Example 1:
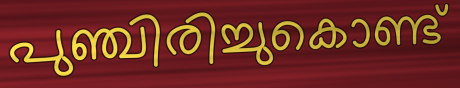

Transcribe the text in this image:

പുഞ്ചിരിച്ചുകൊണ്ട്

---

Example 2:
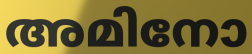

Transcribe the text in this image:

അമിനോ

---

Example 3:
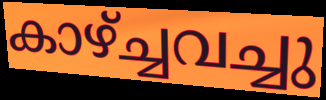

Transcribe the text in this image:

കാഴ്ച്ചവച്ചു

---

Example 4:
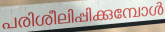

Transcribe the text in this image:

പരിശീലിപ്പിക്കുമ്പോൾ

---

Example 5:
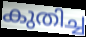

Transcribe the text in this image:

കുതിച്ച